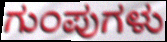
ಗುಂಪುಗಳು